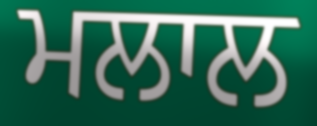
ਮਲਾਲ